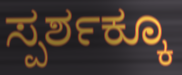
ಸ್ಪರ್ಶಕ್ಕೂ